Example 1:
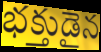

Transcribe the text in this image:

భక్తుడైన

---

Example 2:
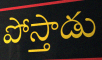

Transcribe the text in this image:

పోస్తాడు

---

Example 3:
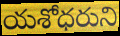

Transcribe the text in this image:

యశోధరుని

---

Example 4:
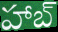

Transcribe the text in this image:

హాబ్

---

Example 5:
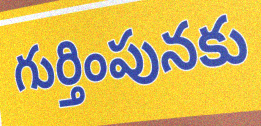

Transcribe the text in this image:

గుర్తింపునకు